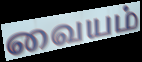
வையம்